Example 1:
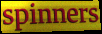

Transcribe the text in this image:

spinners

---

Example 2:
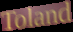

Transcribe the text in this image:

Toland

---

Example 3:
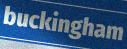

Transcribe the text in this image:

buckingham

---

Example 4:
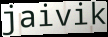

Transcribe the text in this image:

jaivik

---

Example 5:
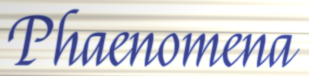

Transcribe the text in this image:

Phaenomena